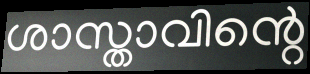
ശാസ്താവിന്റെ